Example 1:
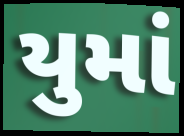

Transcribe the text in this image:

યુમાં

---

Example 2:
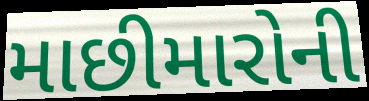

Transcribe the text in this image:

માછીમારોની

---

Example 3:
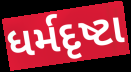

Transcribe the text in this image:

ધર્મદૃષ્ટા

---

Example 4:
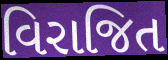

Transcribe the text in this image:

વિરાજિત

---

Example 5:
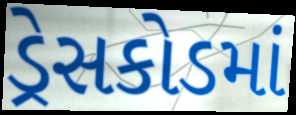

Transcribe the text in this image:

ડ્રેસકોડમાં